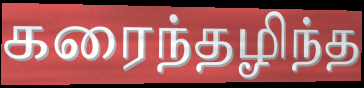
கரைந்தழிந்த